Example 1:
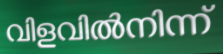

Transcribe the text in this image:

വിളവിൽനിന്ന്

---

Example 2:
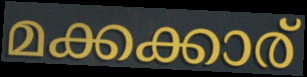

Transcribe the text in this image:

മക്കക്കാര്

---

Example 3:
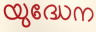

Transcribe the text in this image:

യുദ്ധേന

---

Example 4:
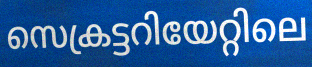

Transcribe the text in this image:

സെക്രട്ടറിയേറ്റിലെ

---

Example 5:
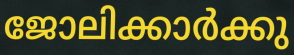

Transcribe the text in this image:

ജോലിക്കാർക്കു